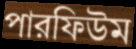
পারফিউম